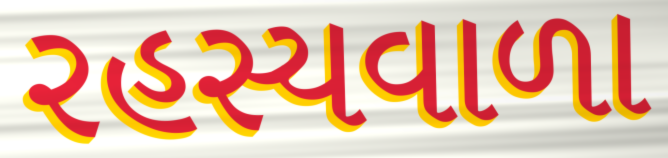
રહસ્યવાળા